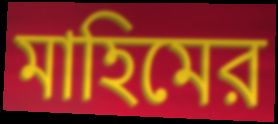
মাহিমের